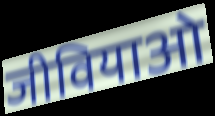
जीवियाओ